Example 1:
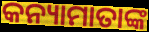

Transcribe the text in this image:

କନ୍ୟାମାତାଙ୍କ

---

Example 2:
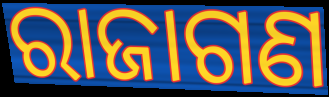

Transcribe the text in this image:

ରାଜାଗଣ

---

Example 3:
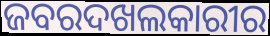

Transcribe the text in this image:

ଜବରଦଖଲକାରୀର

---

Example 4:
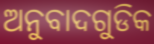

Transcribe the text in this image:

ଅନୁବାଦଗୁଡିକ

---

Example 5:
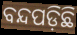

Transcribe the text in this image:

ବନ୍ଦପଡ଼ିଛି